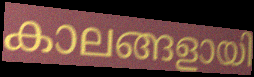
കാലങ്ങളായി